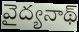
వైద్యనాథ్